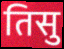
तिसु